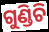
ଗୁଣ୍ଡିଚି